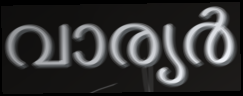
വാര്യർ